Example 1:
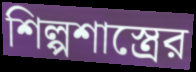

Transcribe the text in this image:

শিল্পশাস্ত্রের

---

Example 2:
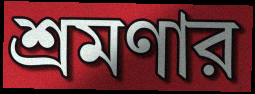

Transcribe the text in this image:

শ্রমণার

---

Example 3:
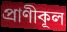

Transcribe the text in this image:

প্রাণীকূল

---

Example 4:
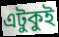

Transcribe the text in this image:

এটুকুই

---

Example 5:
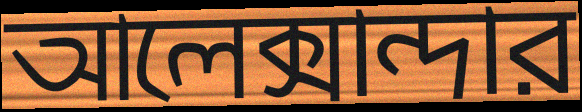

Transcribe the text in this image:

আলেক্সান্দার